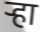
ऱ्हा